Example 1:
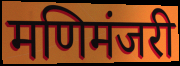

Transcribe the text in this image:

मणिमंजरी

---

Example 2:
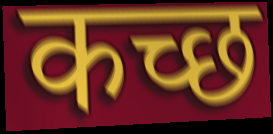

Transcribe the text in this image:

कच्‍छ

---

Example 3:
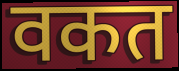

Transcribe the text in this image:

वकत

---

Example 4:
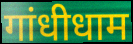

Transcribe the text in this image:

गांधीधाम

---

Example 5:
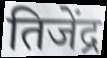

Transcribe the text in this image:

तिजेंद्र